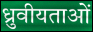
ध्रुवीयताओं